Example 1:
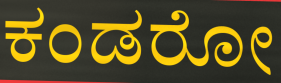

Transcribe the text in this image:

ಕಂಡರೋ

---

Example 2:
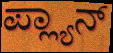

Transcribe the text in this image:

ಪ್ಲ್ಯಾನ್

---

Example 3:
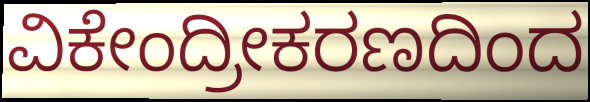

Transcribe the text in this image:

ವಿಕೇಂದ್ರೀಕರಣದಿಂದ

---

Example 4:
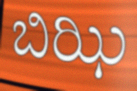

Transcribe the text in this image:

ಬಿಝಿ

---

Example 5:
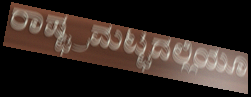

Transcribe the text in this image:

ರಾಷ್ಟ್ರಮಟ್ಟದಲ್ಲಿಯೂ